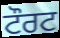
ਟੌਰਟ